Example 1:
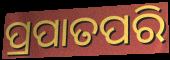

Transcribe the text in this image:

ପ୍ରପାତପରି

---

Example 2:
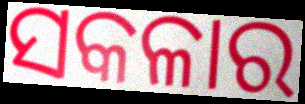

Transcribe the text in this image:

ସକଳାର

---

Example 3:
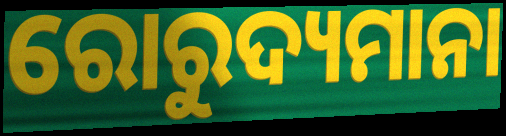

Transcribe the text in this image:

ରୋରୁଦ୍ୟମାନା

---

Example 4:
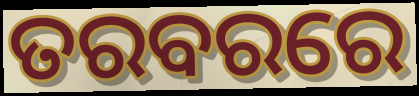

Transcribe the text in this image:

ତରବରରେ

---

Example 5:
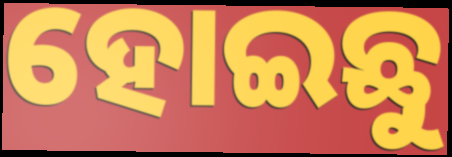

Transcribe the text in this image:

ହୋଇଛୁ